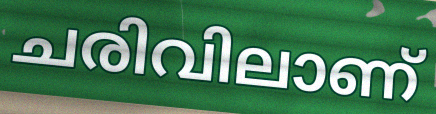
ചരിവിലാണ്